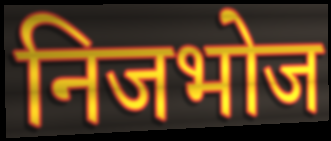
निजभोज